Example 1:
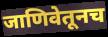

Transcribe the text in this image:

जाणिवेतूनच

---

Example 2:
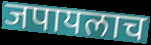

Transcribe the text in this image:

जपायलाच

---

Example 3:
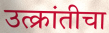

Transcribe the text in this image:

उत्क्रांतीचा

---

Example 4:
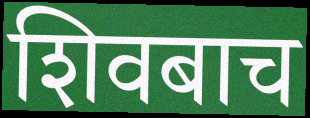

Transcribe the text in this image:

शिवबाच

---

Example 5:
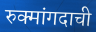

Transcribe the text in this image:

रुक्मांगदाची